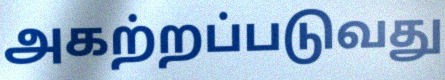
அகற்றப்படுவது